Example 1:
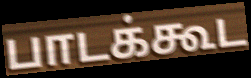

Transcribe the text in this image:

பாடக்கூட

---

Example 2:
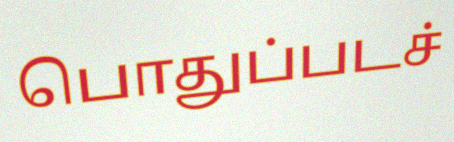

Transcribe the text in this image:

பொதுப்படச்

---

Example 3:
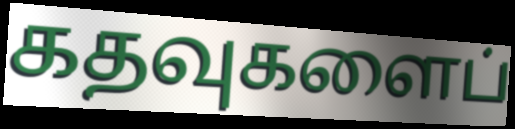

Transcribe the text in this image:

கதவுகளைப்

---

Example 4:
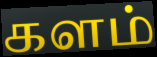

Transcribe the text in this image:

களம்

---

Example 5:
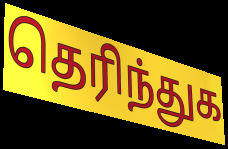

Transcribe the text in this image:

தெரிந்துக